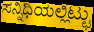
ಸನ್ನಿಧಿಯಲ್ಲಿಟ್ಟು